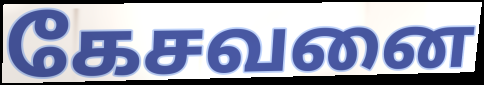
கேசவனை